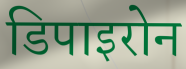
डिपाइरोन